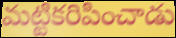
మట్టికరిపించాడు